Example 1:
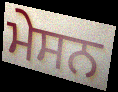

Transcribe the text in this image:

ਮੇਸਨ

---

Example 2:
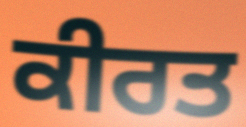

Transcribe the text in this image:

ਕੀਰਤ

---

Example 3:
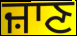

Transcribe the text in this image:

ਜ਼ਾਣ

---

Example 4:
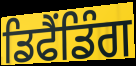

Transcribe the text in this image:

ਡਿਫੈਂਡਿੰਗ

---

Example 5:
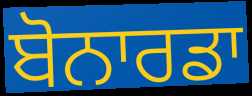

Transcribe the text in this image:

ਬੋਨਾਰਡਾ